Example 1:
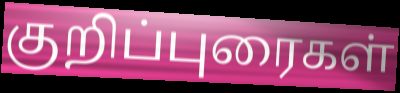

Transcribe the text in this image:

குறிப்புரைகள்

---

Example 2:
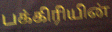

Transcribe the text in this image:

பக்கிரியின்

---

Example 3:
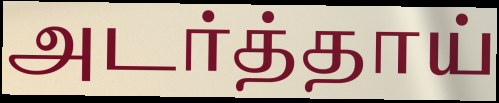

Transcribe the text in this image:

அடர்த்தாய்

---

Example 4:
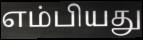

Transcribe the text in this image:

எம்பியது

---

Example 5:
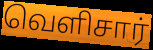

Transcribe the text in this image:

வெளிசார்